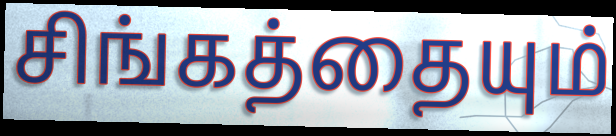
சிங்கத்தையும்